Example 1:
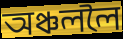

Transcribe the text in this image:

অঞ্চললৈ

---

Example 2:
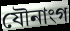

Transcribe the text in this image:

যৌনাংগ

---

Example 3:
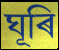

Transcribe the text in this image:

ঘূৰি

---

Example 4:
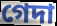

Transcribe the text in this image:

গেদা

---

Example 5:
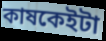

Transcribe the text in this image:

কাষকেইটা